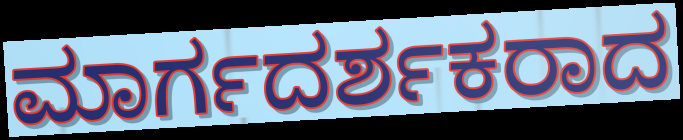
ಮಾರ್ಗದರ್ಶಕರಾದ